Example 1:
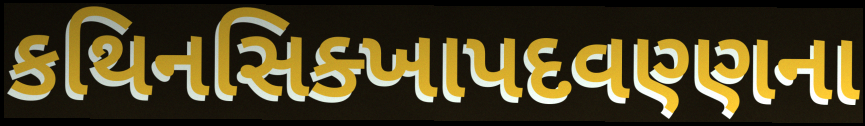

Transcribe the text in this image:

કથિનસિક્ખાપદવણ્ણના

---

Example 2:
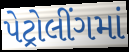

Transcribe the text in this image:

પેટ્રોલીંગમાં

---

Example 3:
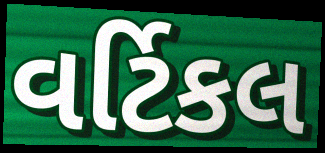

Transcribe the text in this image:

વર્ટિકલ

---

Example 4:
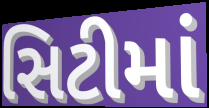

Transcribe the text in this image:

સિટીમાં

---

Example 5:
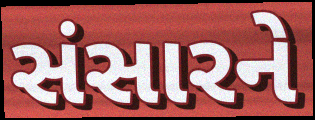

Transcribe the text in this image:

સંસારને